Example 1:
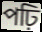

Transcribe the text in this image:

পঢ়ি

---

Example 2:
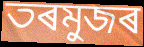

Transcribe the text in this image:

তৰমুজৰ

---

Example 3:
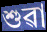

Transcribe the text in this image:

শুৱা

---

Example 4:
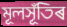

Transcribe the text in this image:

মূলসূঁতিৰ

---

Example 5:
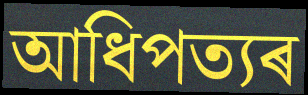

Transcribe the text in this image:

আধিপত্যৰ